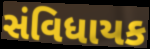
સંવિધાયક